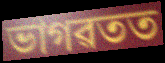
ভাগৱতত